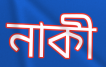
নাকী